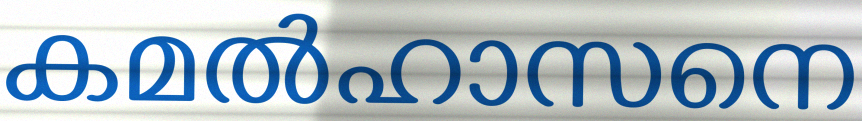
കമൽഹാസനെ